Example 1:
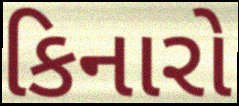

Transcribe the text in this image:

કિનારો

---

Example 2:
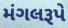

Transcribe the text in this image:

મંગલરૂપે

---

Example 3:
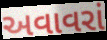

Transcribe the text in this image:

અવાવરાં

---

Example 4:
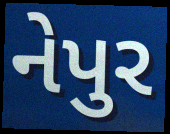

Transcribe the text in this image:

નેપુર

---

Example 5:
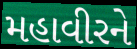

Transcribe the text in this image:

મહાવીરને